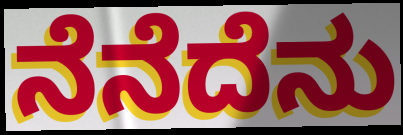
ನೆನೆದೆನು